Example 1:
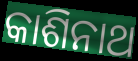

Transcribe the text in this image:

କାଶିନାଥ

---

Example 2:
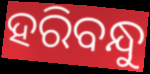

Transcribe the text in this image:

ହରିବନ୍ଧୁ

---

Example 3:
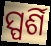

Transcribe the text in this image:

ସ୍ପର୍ଶି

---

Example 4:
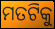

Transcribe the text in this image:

ମତଟିକୁ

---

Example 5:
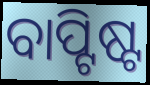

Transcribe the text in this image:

ବାପ୍ଟିଷ୍ଟ